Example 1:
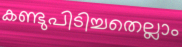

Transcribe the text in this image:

കണ്ടുപിടിച്ചതെല്ലാം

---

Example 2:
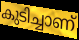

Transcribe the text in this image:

കുടിച്ചാണ്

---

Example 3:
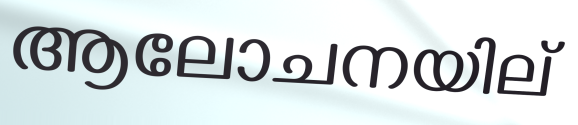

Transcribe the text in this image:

ആലോചനയില്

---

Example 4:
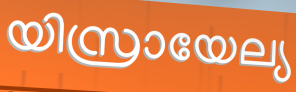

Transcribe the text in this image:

യിസ്രായേല്യ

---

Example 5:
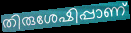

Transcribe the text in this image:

തിരുശേഷിപ്പാണ്